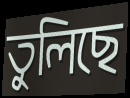
তুলিছে